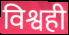
विश्वही